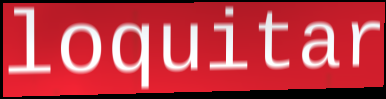
loquitar